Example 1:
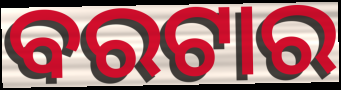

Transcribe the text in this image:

ବରଟାର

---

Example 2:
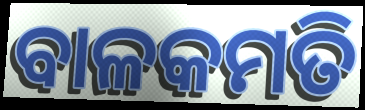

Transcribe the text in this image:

ବାଳକମତି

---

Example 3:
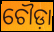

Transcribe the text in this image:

ଚୌଡ଼ା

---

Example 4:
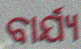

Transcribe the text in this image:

ବାର୍ଯ୍ୟ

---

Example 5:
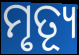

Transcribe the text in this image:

ମୃତ୍ୟୂ